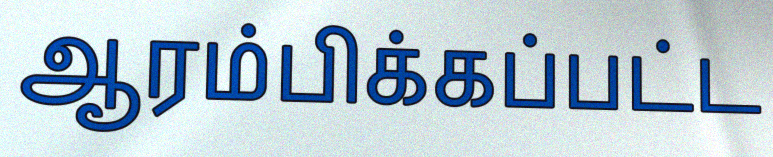
ஆரம்பிக்கப்பட்ட